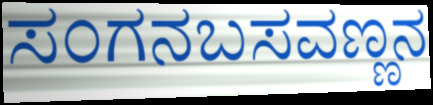
ಸಂಗನಬಸವಣ್ಣನ